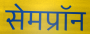
सेमप्रॉन